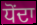
ਧੋਂਦਾ